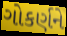
ગોકર્ણને